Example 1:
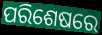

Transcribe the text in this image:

ପରିଶେଷରେ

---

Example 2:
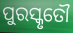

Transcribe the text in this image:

ପୁରସ୍କୃତୌ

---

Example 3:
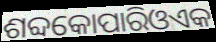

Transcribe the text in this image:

ଶବ୍ଦକୋପାରିଓଏକ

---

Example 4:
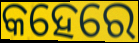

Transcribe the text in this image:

କହେରେ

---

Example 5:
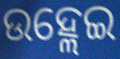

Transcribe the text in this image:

ଉହ୍ଲେଇ